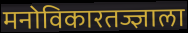
मनोविकारतज्ज्ञाला